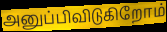
அனுப்பிவிடுகிறோம்